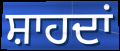
ਸ਼ਾਹਦਾਂ